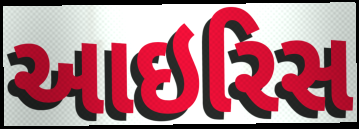
આઇરિસ